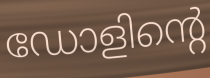
ഡോളിന്റെ